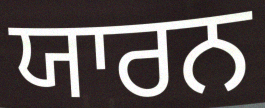
ਯਾਰਨ